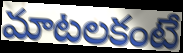
మాటలకంటే